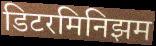
डिटरमिनिझम